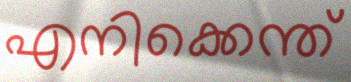
എനിക്കെന്ത്